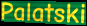
Palatski